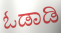
ಓಡಾಡಿ